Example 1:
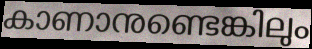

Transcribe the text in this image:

കാണാനുണ്ടെങ്കിലും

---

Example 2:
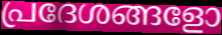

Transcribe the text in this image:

പ്രദേശങ്ങളോ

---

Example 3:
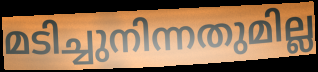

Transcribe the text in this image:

മടിച്ചുനിന്നതുമില്ല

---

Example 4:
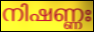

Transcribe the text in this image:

നിഷണ്ണഃ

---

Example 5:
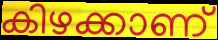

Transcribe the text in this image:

കിഴക്കാണ്